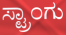
ಸ್ಟ್ರಾಂಗು